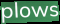
plows